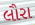
લૌરા